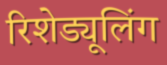
रिशेड्यूलिंग